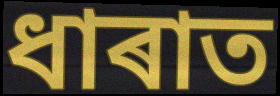
ধাৰাত